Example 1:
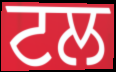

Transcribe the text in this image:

ਟਲ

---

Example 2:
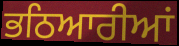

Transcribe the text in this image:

ਭਠਿਆਰੀਆਂ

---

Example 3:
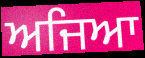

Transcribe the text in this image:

ਅਜਿਆ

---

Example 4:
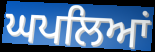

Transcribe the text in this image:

ਘਪਲਿਆਂ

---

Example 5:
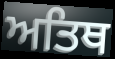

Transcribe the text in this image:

ਅਤਿਥ